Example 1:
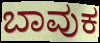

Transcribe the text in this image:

ಬಾವುಕ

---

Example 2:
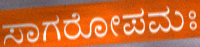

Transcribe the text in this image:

ಸಾಗರೋಪಮಃ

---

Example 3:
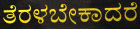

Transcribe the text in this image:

ತೆರಳಬೇಕಾದರೆ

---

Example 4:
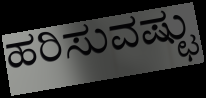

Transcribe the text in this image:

ಹರಿಸುವಷ್ಟು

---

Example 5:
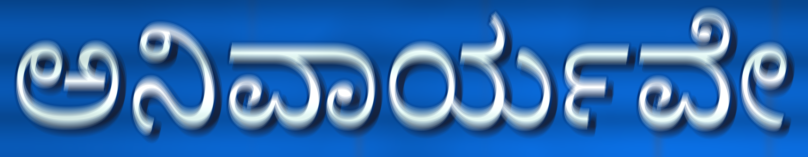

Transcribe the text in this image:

ಅನಿವಾರ್ಯವೇ